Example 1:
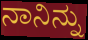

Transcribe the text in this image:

ನಾನಿನ್ನು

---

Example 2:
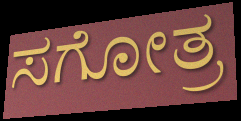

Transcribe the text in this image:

ಸಗೋತ್ರ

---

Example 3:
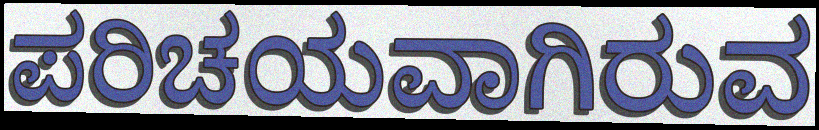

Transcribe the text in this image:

ಪರಿಚಯವಾಗಿರುವ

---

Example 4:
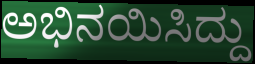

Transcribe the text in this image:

ಅಭಿನಯಿಸಿದ್ದು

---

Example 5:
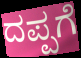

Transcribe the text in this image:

ದಪ್ಪಗೆ